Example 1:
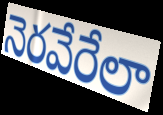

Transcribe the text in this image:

నెరవేరేలా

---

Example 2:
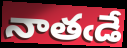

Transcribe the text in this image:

నాతఁడే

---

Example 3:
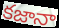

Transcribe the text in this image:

కజానా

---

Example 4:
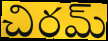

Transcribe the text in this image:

చిరమ్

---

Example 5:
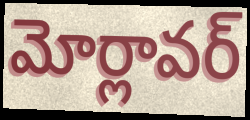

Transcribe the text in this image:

మోర్లావర్